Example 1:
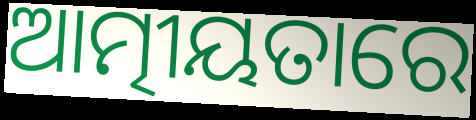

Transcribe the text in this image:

ଆତ୍ମୀୟତାରେ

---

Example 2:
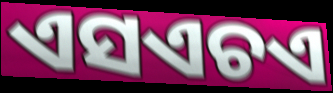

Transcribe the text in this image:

ଏସଏଚଏ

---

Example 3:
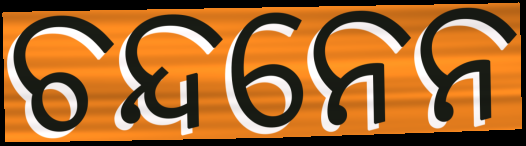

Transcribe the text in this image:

ଚନ୍ଦନେନ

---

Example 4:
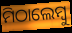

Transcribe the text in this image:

ମିଠାଲେମ୍ବୁ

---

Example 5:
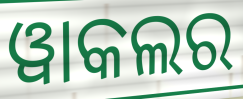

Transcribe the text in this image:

ୱାକଲର